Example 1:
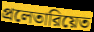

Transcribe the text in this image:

প্রলেতারিয়েত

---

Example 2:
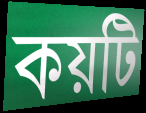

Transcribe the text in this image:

কয়টি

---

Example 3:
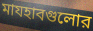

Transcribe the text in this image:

মাযহাবগুলোর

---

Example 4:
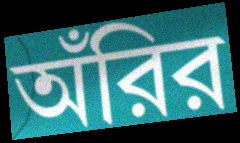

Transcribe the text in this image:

অঁরির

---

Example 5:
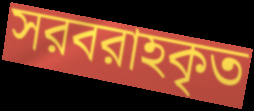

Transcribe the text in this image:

সরবরাহকৃত